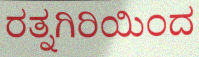
ರತ್ನಗಿರಿಯಿಂದ